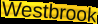
Westbrook